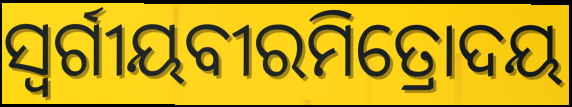
ସ୍ୱର୍ଗୀୟବୀରମିତ୍ରୋଦୟ